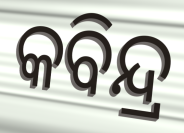
କବିନ୍ଦ୍ର